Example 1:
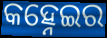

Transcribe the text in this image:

କହ୍ନେଇର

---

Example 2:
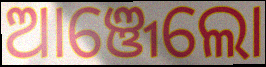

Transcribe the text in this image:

ଆଞ୍ଜେଲୋ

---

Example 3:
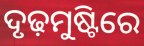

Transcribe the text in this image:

ଦୃଢ଼ମୁଷ୍ଟିରେ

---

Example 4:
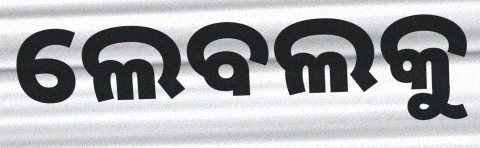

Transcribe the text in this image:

ଲେବଲକୁ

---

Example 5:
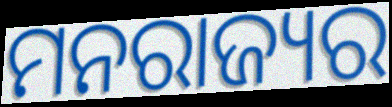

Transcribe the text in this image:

ମନରାଜ୍ୟର